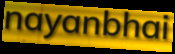
nayanbhai